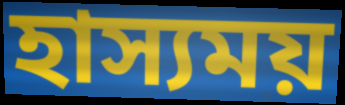
হাস্যময়